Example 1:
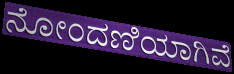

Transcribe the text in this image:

ನೋಂದಣಿಯಾಗಿವೆ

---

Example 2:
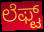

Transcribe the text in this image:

ಲೆಫ್ಟ್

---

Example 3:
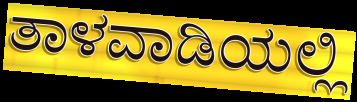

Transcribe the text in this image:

ತಾಳವಾಡಿಯಲ್ಲಿ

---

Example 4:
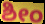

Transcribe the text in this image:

ಶೀಂ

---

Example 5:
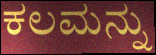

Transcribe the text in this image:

ಕಲಮನ್ನು